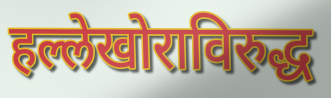
हल्लेखोराविरुद्ध